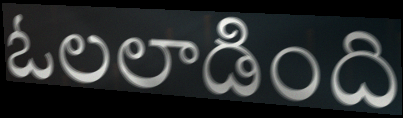
ఓలలాడింది